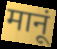
मानूं